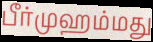
பீர்முஹம்மது